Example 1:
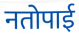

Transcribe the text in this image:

नतोपाई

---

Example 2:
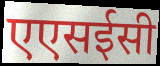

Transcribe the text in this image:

एएसईसी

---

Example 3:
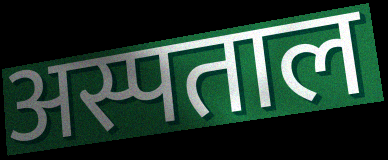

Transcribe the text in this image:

अस्पताल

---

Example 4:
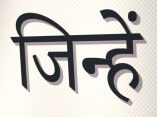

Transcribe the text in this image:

जिन्हें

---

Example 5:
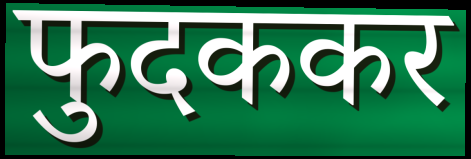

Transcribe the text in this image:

फुदककर